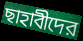
ছাহাবীদের